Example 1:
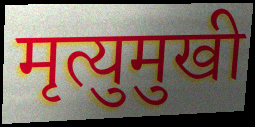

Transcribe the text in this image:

मृत्युमुखी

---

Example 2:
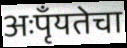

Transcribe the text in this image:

अःपृँयतेचा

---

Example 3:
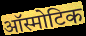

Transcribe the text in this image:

ऑस्मोटिक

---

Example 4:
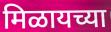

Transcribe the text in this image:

मिळायच्या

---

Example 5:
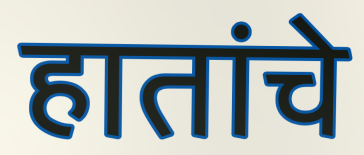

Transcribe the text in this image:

हातांचे